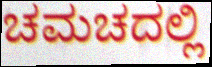
ಚಮಚದಲ್ಲಿ